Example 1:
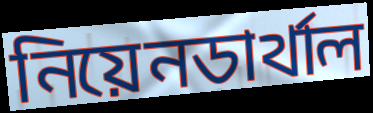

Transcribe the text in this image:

নিয়েনডার্থাল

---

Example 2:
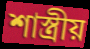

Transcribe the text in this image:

শাস্ত্রীয়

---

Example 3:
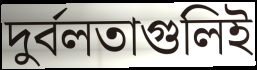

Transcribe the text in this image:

দুর্বলতাগুলিই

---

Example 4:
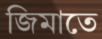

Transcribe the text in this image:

জিমাতে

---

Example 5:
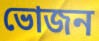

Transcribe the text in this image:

ভোজন